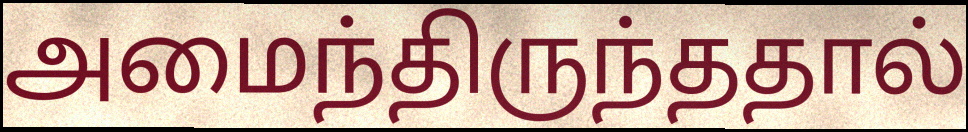
அமைந்திருந்ததால்